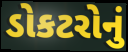
ડોકટરોનું